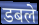
डबले